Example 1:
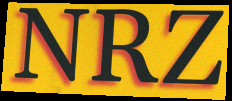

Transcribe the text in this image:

NRZ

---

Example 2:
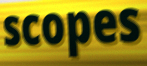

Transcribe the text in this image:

scopes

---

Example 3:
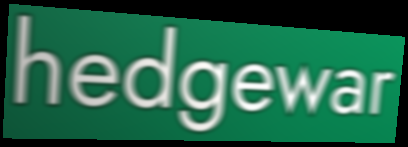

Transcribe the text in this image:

hedgewar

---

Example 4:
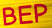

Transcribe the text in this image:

BEP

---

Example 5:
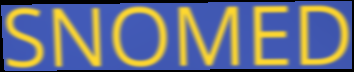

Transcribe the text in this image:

SNOMED